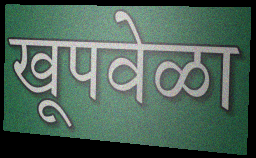
खूपवेळा